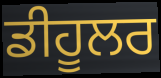
ਡੀਹੂਲਰ